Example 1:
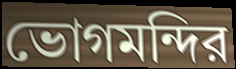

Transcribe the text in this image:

ভোগমন্দির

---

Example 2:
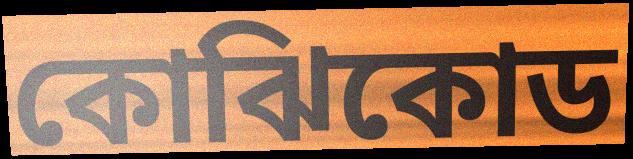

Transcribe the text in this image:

কোঝিকোড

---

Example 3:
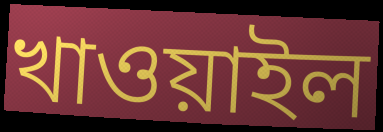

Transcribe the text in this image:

খাওয়াইল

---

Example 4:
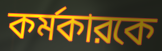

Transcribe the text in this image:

কর্মকারকে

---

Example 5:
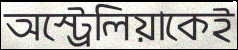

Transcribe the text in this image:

অস্ট্রেলিয়াকেই